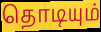
தொடியும்